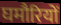
घमौरियों